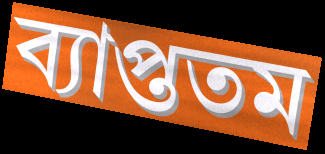
ব্যাপ্ততম